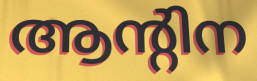
ആന്റിന